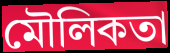
মৌলিকতা